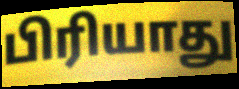
பிரியாது